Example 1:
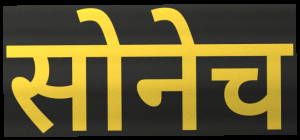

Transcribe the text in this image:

सोनेच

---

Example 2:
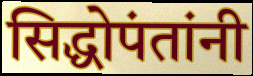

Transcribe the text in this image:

सिद्धोपंतांनी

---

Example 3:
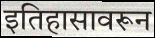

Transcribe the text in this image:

इतिहासावरून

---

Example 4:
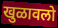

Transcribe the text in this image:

खुळावलो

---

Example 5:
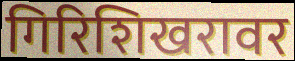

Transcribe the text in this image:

गिरिशिखरावर